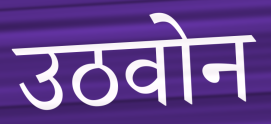
उठवोन